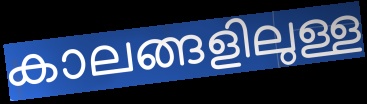
കാലങ്ങളിലുള്ള